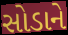
સોડાને